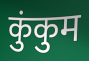
कुंकुम